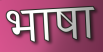
भाषा